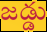
జడ్డు